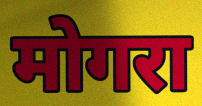
मोगरा